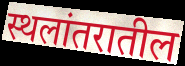
स्थलांतरातील